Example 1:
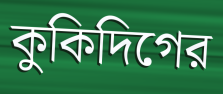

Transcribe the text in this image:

কুকিদিগের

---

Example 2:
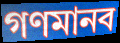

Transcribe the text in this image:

গণমানব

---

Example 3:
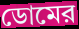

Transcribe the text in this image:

ডোমের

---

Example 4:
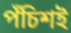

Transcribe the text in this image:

পঁচিশই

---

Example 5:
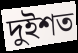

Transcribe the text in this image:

দুইশত